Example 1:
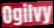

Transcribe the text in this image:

Ogilvy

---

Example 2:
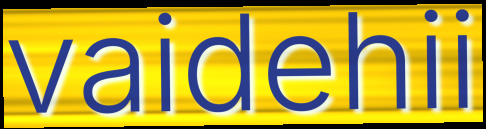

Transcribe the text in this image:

vaidehii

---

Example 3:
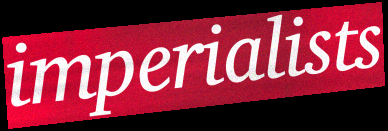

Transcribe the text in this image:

imperialists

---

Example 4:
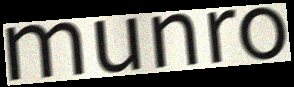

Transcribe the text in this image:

munro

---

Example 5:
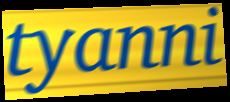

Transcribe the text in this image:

tyanni